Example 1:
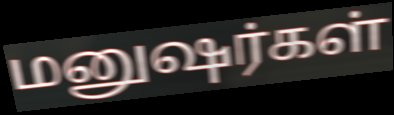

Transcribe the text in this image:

மனுஷர்கள்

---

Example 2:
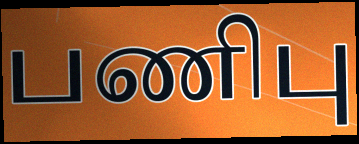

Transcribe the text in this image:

பணிபு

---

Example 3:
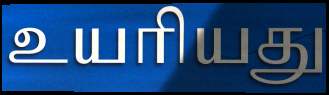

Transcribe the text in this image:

உயரியது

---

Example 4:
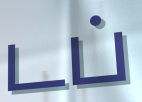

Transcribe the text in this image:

டப்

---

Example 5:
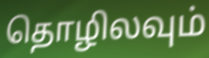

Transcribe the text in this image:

தொழிலவும்